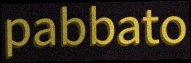
pabbato